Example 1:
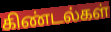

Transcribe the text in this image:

கிண்டல்கள்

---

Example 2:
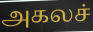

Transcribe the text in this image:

அகலச்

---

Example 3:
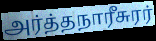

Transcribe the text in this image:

அர்த்தநாரீசுரர்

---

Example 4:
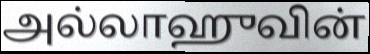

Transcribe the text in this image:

அல்லாஹுவின்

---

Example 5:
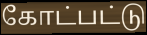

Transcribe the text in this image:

கோட்பட்டு